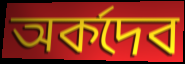
অর্কদেব